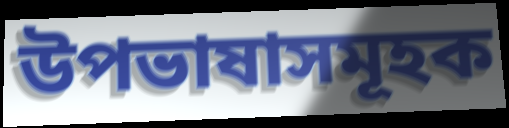
উপভাষাসমূহক